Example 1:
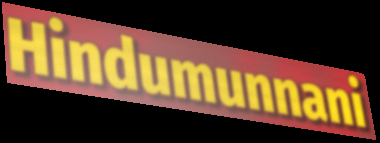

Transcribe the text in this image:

Hindumunnani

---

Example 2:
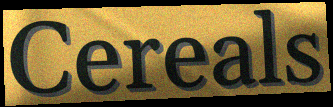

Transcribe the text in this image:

Cereals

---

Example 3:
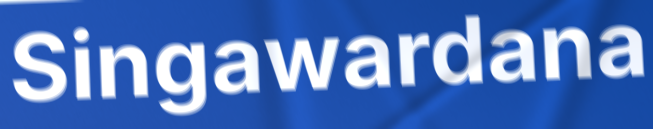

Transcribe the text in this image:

Singawardana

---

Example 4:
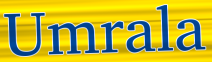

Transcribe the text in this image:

Umrala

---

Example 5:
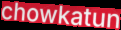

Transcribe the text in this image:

chowkatun